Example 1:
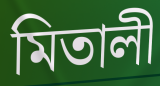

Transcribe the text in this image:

মিতালী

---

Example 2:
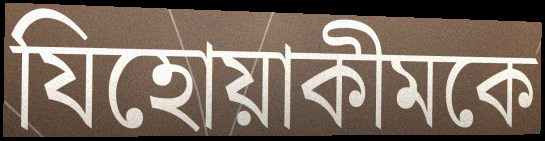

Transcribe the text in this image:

যিহোয়াকীমকে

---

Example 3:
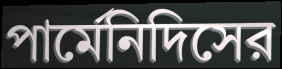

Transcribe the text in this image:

পার্মেনিদিসের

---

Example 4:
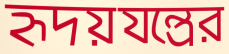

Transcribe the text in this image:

হৃদয়যন্ত্রের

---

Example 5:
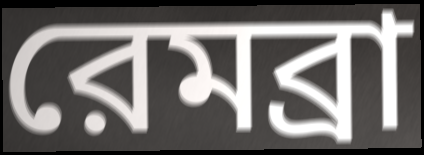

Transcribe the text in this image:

রেমব্রা